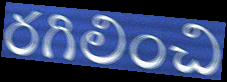
రగిలించి